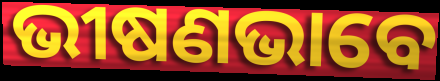
ଭୀଷଣଭାବେ